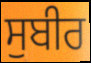
ਸੁਬੀਰ